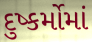
દુષ્કર્મોમાં